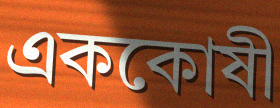
এককোষী